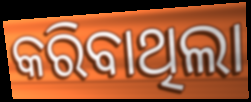
କରିବାଥିଲା